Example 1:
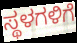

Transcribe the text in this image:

ಸ್ಥಳಗಳಿಗೆ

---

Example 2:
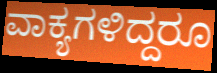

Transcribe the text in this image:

ವಾಕ್ಯಗಳಿದ್ದರೂ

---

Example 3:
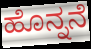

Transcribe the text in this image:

ಹೊನ್ನನೆ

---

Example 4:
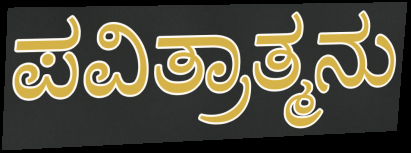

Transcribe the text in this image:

ಪವಿತ್ರಾತ್ಮನು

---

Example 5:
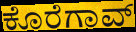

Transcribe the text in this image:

ಕೊರೆಗಾವ್